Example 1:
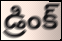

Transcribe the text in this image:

డ్రింక్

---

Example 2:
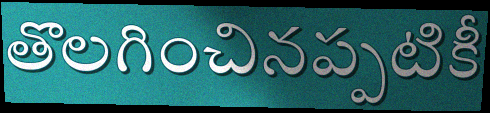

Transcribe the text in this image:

తొలగించినప్పటికీ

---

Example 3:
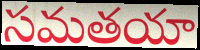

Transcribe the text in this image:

సమతయా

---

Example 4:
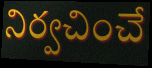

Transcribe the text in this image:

నిర్వచించే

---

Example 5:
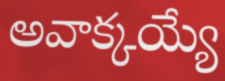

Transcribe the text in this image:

అవాక్కయ్యే